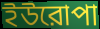
ইউরোপা